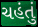
ચહંતું